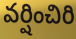
వర్షించిరి